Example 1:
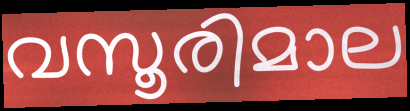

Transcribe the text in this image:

വസൂരിമാല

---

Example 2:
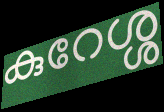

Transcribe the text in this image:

കുറേശ്ശ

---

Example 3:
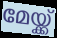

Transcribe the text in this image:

മേയ്ക്ക്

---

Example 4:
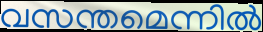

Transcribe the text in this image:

വസന്തമെന്നിൽ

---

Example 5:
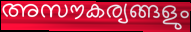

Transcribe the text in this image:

അസൗകര്യങ്ങളും